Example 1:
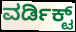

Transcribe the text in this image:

ವರ್ಡಿಕ್ಟ್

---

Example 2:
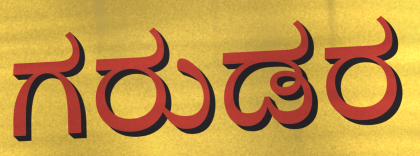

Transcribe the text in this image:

ಗರುಡರ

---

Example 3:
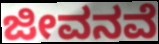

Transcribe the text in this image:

ಜೀವನವೆ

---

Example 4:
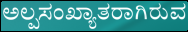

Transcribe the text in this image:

ಅಲ್ಪಸಂಖ್ಯಾತರಾಗಿರುವ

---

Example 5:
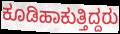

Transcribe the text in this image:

ಕೂಡಿಹಾಕುತ್ತಿದ್ದರು